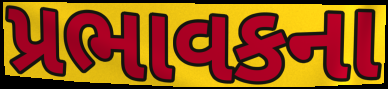
પ્રભાવકના